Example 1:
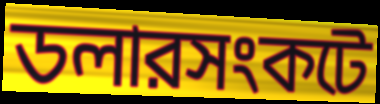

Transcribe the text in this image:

ডলারসংকটে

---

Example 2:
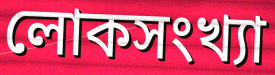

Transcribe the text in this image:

লোকসংখ্যা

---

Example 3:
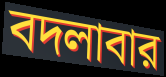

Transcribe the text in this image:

বদলাবার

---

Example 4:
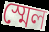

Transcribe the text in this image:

স্মেল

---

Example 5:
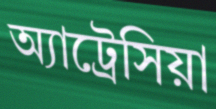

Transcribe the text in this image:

অ্যাট্রেসিয়া